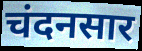
चंदनसार